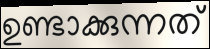
ഉണ്ടാക്കുന്നത്